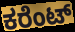
ಕರೆಂಟ್